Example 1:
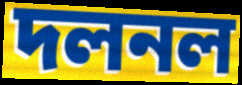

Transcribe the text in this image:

দলনল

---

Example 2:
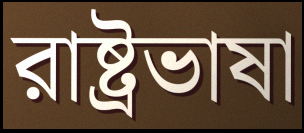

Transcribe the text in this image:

রাষ্ট্রভাষা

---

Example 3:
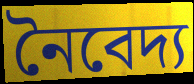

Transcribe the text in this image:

নৈবেদ্য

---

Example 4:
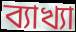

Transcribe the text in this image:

ব্যাখ্যা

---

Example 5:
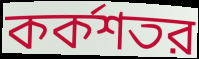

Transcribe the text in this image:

কর্কশতর